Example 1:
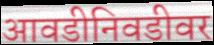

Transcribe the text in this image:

आवडीनिवडीवर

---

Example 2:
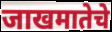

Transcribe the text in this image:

जाखमातेचे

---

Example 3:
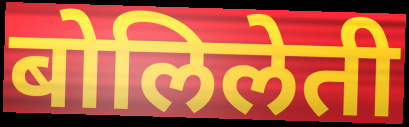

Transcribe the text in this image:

बोलिलेती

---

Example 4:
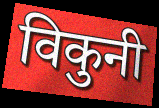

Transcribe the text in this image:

विकुनी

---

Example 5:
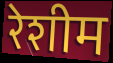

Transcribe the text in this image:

रेशीम